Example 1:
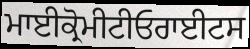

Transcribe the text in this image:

ਮਾਈਕ੍ਰੋਮੀਟੀਓਰਾਈਟਸ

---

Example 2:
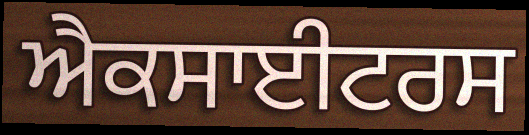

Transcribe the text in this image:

ਐਕਸਾਈਟਰਸ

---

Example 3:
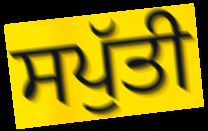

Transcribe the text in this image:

ਸਪੁੱਤੀ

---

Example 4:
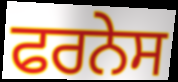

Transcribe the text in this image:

ਫਰਨੇਸ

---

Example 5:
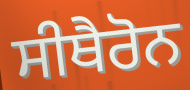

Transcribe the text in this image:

ਸੀਥੈਰੋਨ